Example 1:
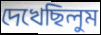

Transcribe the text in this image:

দেখেছিলুম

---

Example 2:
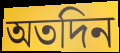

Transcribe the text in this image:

অতদিন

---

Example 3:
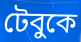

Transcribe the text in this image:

টেবুকে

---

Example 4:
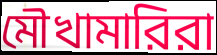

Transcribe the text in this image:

মৌখামারিরা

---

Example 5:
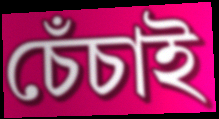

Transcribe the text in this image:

চেঁচাই